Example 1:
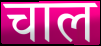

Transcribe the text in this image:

चाल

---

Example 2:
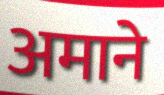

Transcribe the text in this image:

अमाने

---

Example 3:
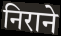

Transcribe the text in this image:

निराने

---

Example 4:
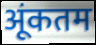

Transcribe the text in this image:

अूंकतम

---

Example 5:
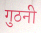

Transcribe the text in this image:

गुठनी